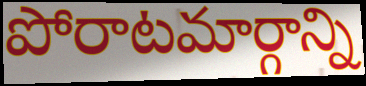
పోరాటమార్గాన్ని